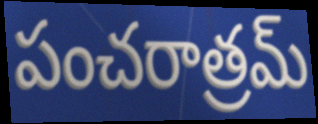
పంచరాత్రమ్